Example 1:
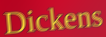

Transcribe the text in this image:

Dickens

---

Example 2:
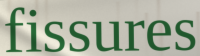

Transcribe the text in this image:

fissures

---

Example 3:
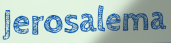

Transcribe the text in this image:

Jerosalema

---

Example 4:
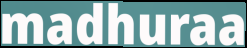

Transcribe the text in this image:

madhuraa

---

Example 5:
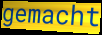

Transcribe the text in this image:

gemacht